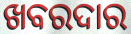
ଖବରଦାର